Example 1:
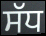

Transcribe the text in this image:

ਸੱਧ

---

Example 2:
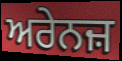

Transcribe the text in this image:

ਅਰੇਨਜ਼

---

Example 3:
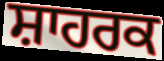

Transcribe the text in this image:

ਸ਼ਾਹਰਕ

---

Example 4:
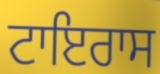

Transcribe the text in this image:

ਟਾਇਰਾਸ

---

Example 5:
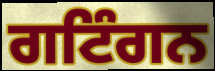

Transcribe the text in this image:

ਗਟਿੰਗਨ